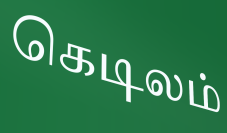
கெடிலம்